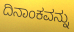
ದಿನಾಂಕವನ್ನು